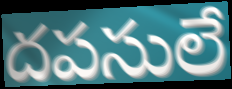
దపసులే